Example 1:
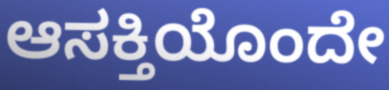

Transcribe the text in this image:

ಆಸಕ್ತಿಯೊಂದೇ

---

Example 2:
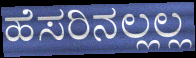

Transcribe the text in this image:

ಹೆಸರಿನಲ್ಲಲ್ಲ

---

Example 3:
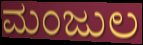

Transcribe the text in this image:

ಮಂಜುಲ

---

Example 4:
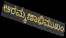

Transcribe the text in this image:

ಆರಮ್ಮಣಾಭಿಮುಖಂ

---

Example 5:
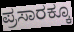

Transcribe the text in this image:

ಪ್ರಸಾರಕ್ಕೂ